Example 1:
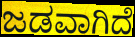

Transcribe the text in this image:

ಜಡವಾಗಿದೆ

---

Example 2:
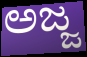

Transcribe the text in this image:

ಅಜ್ಜ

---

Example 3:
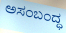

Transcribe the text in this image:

ಅಸಂಬಂದ್ಧ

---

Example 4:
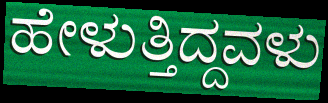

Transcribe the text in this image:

ಹೇಳುತ್ತಿದ್ದವಳು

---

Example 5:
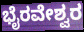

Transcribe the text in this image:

ಭೈರವೇಶ್ವರ